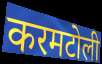
करमटोली